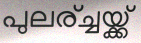
പുലര്ച്ചയ്ക്ക്